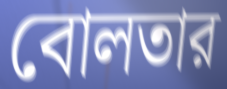
বোলতার